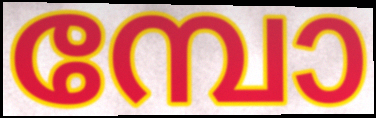
മ്പോ